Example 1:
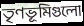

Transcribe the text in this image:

তৃণভূমিগুলো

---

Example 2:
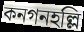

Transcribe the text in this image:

কনগনহল্লি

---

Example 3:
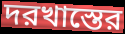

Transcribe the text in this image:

দরখাস্তের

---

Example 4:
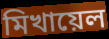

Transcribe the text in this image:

মিখায়েল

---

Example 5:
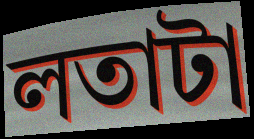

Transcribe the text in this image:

লতাটা